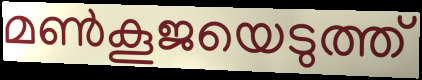
മൺകൂജയെടുത്ത്